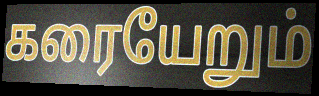
கரையேறும்